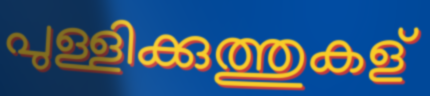
പുള്ളിക്കുത്തുകള്